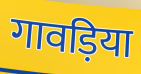
गावड़िया